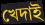
খেদাই